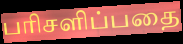
பரிசளிப்பதை